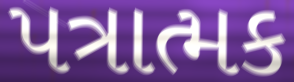
પત્રાત્મક